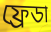
ফ্রেডা